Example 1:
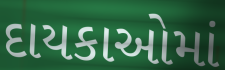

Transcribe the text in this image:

દાયકાઓમાં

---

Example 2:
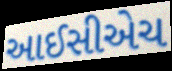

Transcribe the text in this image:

આઈસીએચ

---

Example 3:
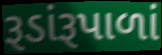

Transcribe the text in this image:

રૂડાંરૂપાળાં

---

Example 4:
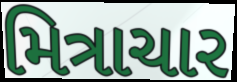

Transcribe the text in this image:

મિત્રાચાર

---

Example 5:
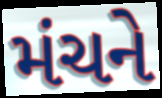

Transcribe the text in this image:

મંચને